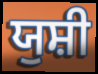
ਯੁਸ਼ੀ